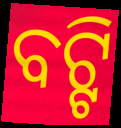
ବଟ୍ଟି